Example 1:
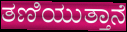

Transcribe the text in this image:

ತಣಿಯುತ್ತಾನೆ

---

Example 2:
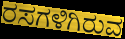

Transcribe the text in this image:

ರಸಗಳಿಗಿರುವ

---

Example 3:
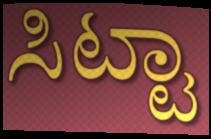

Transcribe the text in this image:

ಸಿಟ್ಟಾ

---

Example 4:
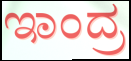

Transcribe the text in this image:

ಇಾಂದ್ರ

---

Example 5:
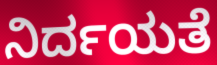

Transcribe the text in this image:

ನಿರ್ದಯತೆ